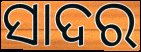
ସାଦର